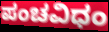
ಪಂಚವಿಧಂ